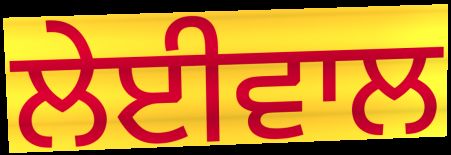
ਲੇਈਵਾਲ